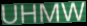
UHMW